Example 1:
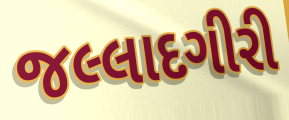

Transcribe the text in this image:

જલ્લાદગીરી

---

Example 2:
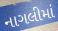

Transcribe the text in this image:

નાગલીમાં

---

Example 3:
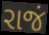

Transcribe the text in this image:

રાજં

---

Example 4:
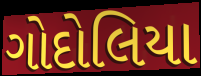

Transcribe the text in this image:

ગોદોલિયા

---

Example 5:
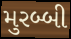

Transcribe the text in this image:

મુરબ્બી